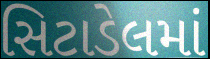
સિટાડેલમાં